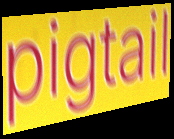
pigtail